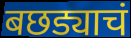
बछड्याचं